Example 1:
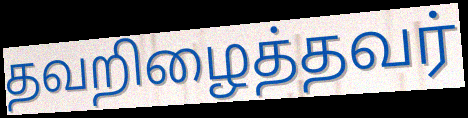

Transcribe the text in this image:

தவறிழைத்தவர்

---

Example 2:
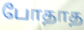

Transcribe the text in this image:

போதாத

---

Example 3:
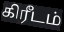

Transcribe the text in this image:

கிரீடம்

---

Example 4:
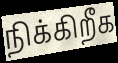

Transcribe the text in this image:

நிக்கிறீக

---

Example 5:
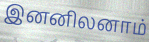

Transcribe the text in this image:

இனனிலனாம்